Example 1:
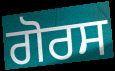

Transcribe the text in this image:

ਗੋਰਸ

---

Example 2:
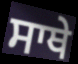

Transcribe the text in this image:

ਸਾਥੇ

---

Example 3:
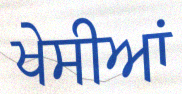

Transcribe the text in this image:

ਖੇਸੀਆਂ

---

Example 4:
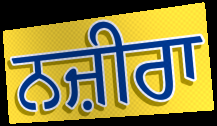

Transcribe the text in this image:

ਨਜ਼ੀਰਾ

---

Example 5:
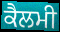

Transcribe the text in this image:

ਕੈਲਮੀ